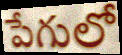
పేగులో